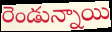
రెండున్నాయి